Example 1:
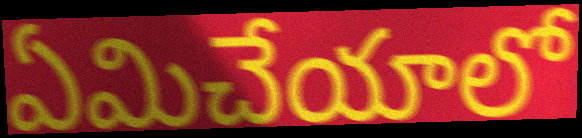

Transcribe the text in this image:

ఏమిచేయాలో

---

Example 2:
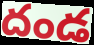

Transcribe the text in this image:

దండ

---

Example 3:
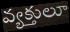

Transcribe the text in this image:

వ్యక్తులూ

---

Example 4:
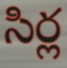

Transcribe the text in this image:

సిర్ల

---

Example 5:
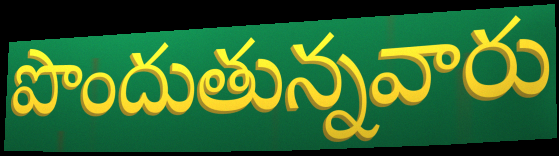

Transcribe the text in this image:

పొందుతున్నవారు